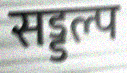
सड्डल्प